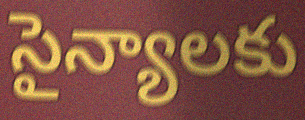
సైన్యాలకు